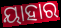
ୟାହାର